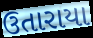
ઉતારાયા